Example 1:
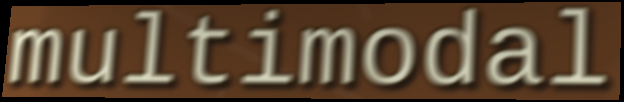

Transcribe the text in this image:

multimodal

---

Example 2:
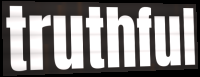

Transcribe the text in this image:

truthful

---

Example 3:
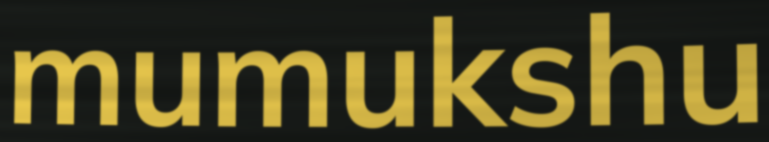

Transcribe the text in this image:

mumukshu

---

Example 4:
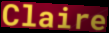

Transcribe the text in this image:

Claire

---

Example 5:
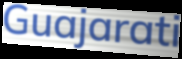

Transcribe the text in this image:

Guajarati